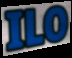
ILO